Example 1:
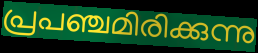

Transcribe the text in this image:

പ്രപഞ്ചമിരിക്കുന്നു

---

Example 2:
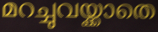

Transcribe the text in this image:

മറച്ചുവയ്ക്കാതെ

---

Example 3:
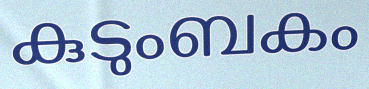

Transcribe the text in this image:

കുടുംബകം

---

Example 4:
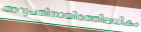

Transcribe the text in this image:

അറുപതിനായിരത്തിലധികം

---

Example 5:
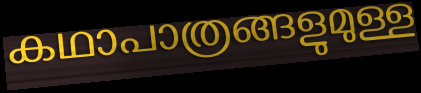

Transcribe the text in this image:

കഥാപാത്രങ്ങളുമുള്ള